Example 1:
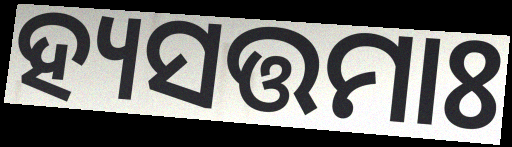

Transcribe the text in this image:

ହ୍ୟସତ୍ତମାଃ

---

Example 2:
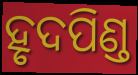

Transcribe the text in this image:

ହୃଦପିଣ୍ଡ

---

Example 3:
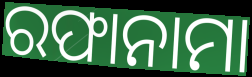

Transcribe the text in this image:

ରଫାନାମା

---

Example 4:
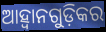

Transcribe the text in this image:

ଆହ୍ୱାନଗୁଡ଼ିକର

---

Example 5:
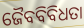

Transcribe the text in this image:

ଜୈବବିବିଧତା